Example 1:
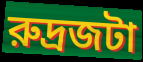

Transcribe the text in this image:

রুদ্রজটা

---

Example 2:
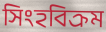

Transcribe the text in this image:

সিংহবিক্রম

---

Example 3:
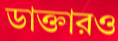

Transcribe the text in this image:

ডাক্তারও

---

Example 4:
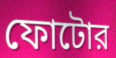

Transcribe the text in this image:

ফোটোর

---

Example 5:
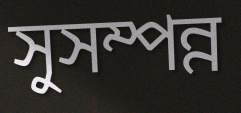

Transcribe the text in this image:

সুসম্পন্ন